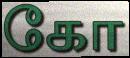
கோ